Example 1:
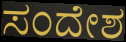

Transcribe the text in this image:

ಸಂದೇಶ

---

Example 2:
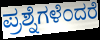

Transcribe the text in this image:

ಪ್ರಶ್ನೆಗಳೆಂದರೆ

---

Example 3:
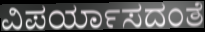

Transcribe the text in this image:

ವಿಪರ್ಯಾಸದಂತೆ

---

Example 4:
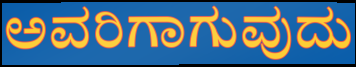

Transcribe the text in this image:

ಅವರಿಗಾಗುವುದು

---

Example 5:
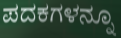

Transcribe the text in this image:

ಪದಕಗಳನ್ನೂ